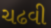
ચઢવી